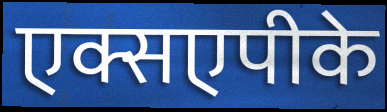
एक्सएपीके